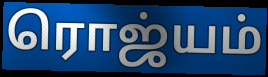
ரொஜ்யம்